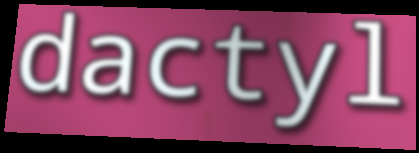
dactyl